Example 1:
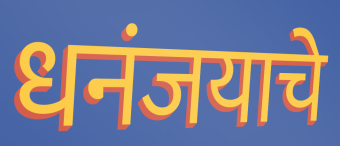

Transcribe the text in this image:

धनंजयाचे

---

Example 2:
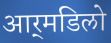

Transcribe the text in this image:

आर्मडिलो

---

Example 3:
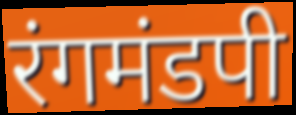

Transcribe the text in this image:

रंगमंडपी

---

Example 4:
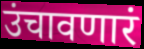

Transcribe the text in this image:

उंचावणारं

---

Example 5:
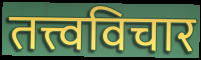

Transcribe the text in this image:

तत्त्वविचार